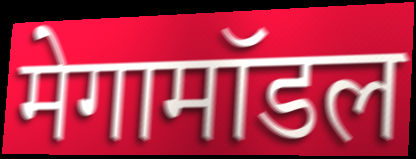
मेगामॉडल